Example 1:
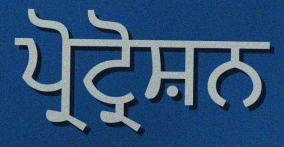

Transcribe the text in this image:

ਪ੍ਰੋਟ੍ਰੋਸ਼ਨ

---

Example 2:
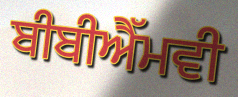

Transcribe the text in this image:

ਬੀਬੀਐੱਮਵੀ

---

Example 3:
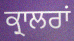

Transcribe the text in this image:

ਕ੍ਰਾਲਰਾਂ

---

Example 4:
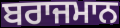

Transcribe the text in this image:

ਬਰਾਜਮਾਨ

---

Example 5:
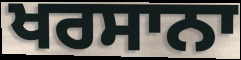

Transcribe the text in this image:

ਖਰਸਾਨਾ